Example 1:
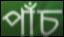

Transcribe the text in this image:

পাঁচ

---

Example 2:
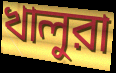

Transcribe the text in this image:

খালুরা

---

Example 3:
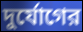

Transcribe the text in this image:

দুর্যোগের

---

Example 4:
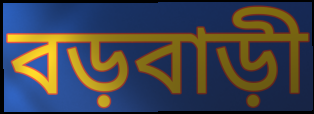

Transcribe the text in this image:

বড়বাড়ী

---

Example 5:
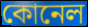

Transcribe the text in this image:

কোনেল